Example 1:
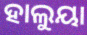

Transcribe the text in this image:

ହାଲୁୟା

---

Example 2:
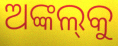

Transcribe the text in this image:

ଅଙ୍କଲ୍‌କୁ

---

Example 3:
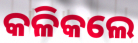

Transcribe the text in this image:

କଳିକଲେ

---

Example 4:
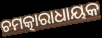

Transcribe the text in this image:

ଚମତ୍କାରାଧାୟକ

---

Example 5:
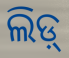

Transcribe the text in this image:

ଲିଡ଼୍